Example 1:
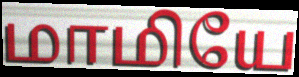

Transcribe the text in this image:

மாமியே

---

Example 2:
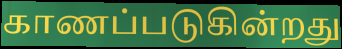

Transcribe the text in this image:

காணப்படுகின்றது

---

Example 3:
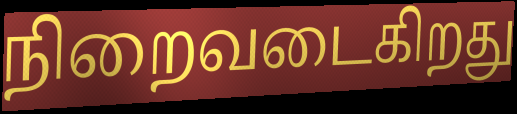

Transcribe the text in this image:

நிறைவடைகிறது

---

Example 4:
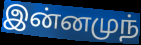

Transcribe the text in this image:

இன்னமுந்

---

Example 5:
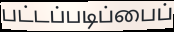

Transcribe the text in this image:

பட்டப்படிப்பைப்